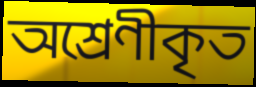
অশ্ৰেণীকৃত